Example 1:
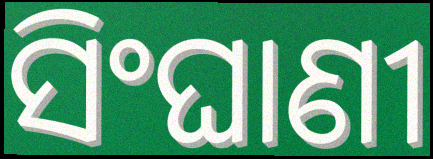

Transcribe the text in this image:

ସିଂଘାଣୀ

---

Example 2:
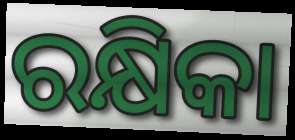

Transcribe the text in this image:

ରକ୍ଷିକା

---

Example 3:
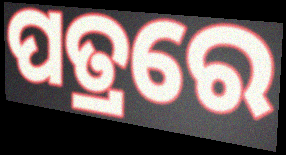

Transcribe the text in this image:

ପତ୍ରରେ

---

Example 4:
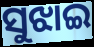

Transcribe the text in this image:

ସୁଝାଇ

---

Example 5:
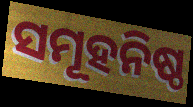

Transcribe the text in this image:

ସମୂହନିଷ୍ଠ